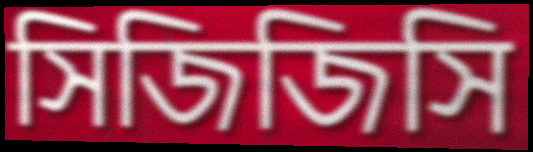
সিজিজিসি